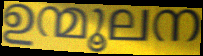
ഉന്മൂലന